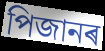
পিজানৰ